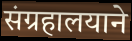
संग्रहालयाने